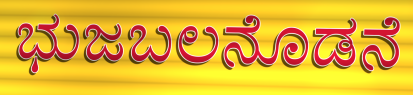
ಭುಜಬಲನೊಡನೆ